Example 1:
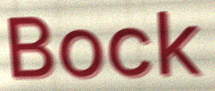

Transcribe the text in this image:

Bock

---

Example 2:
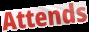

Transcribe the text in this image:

Attends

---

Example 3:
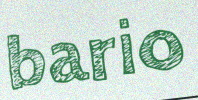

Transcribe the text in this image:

bario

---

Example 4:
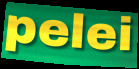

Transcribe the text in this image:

pelei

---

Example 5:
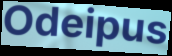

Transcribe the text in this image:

Odeipus